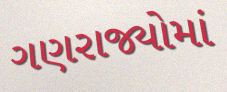
ગણરાજ્યોમાં